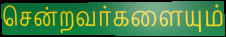
சென்றவர்களையும்